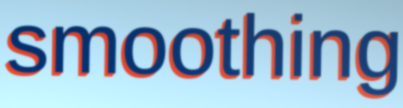
smoothing